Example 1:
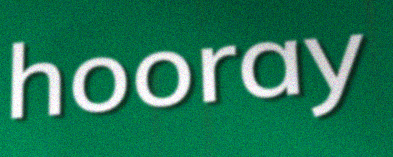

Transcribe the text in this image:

hooray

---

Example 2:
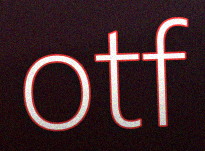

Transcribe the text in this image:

otf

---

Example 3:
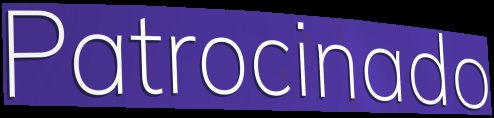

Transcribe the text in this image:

Patrocinado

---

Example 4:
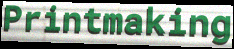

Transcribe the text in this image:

Printmaking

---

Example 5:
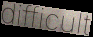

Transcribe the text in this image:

difficult